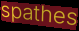
spathes